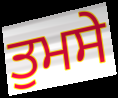
ਤੁਮਸੇ